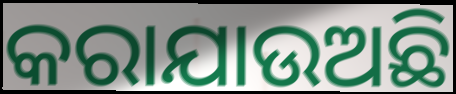
କରାଯାଉଅଛି